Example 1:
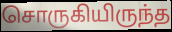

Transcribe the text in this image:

சொருகியிருந்த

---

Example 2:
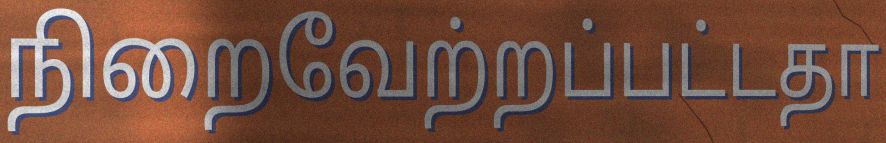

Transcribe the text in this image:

நிறைவேற்றப்பட்டதா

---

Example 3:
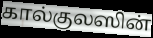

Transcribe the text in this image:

கால்குலஸின்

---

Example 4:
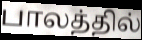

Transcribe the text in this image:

பாலத்தில்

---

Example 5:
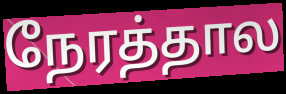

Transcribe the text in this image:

நேரத்தால